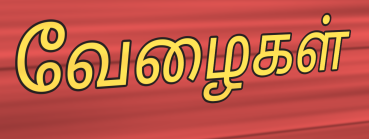
வேழைகள்